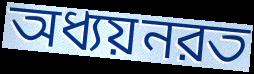
অধ্যয়নরত